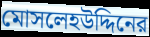
মোসলেহউদ্দিনের